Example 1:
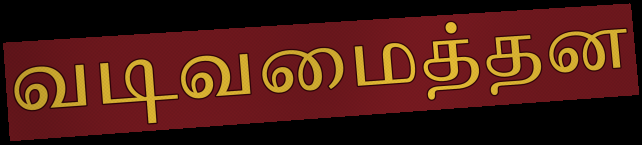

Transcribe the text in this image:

வடிவமைத்தன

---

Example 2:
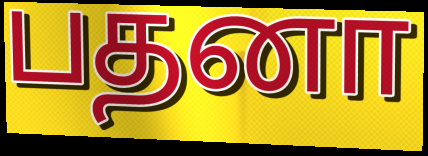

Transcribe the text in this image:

பதனா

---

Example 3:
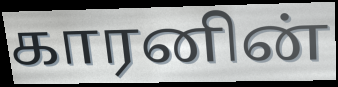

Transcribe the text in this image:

காரனின்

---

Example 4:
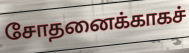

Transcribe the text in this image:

சோதனைக்காகச்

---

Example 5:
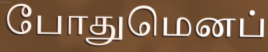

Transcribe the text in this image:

போதுமெனப்